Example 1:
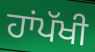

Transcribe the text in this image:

ਹਾਂਪੱਖੀ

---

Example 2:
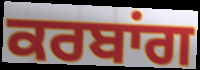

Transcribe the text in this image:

ਕਰਬਾਂਗ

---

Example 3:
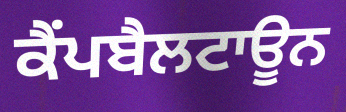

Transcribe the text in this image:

ਕੈਂਪਬੈਲਟਾਊਨ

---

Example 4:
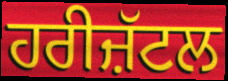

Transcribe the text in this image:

ਹਰੀਜ਼ੱਟਲ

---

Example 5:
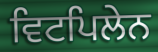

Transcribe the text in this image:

ਵਿਟਪਿਲੇਨ